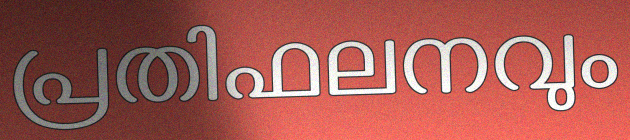
പ്രതിഫലനവും